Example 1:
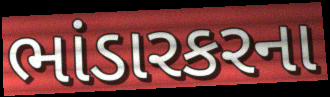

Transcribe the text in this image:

ભાંડારકરના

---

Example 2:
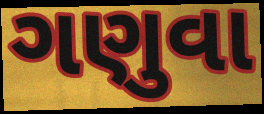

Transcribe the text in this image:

ગણુવા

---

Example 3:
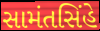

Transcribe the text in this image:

સામંતસિંહે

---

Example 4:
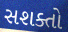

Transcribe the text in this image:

સશક્તો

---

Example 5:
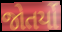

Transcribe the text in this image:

જોતર્યો